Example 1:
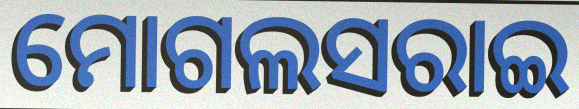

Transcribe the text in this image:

ମୋଗଲସରାଇ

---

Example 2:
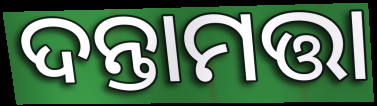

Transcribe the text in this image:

ଦନ୍ତାମତ୍ତା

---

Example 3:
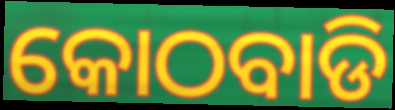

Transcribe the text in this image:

କୋଠବାଡି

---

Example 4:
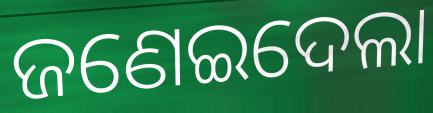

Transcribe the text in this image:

ଜଣେଇଦେଲା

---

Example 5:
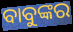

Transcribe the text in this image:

ବାବୁଙ୍କର